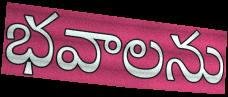
భవాలను